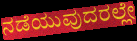
ನಡೆಯುವುದರಲ್ಲೇ